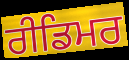
ਰੀਡਿਮਰ